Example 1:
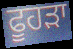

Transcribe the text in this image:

ਫੂਹੜਾ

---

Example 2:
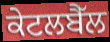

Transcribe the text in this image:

ਕੇਟਲਬੈੱਲ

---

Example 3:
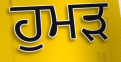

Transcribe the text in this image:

ਹੁਮੜ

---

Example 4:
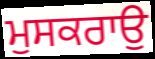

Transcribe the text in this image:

ਮੁਸਕਰਾਉ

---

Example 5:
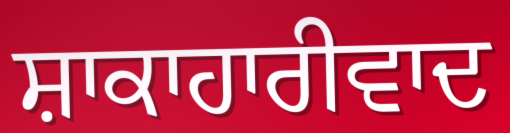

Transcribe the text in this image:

ਸ਼ਾਕਾਹਾਰੀਵਾਦ